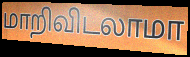
மாறிவிடலாமா